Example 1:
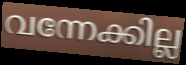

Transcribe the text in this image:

വന്നേക്കില്ല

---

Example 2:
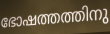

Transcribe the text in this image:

ഭോഷത്തത്തിനു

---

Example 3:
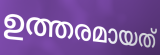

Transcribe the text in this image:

ഉത്തരമായത്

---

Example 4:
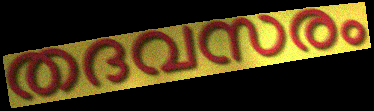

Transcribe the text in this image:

തദവസരം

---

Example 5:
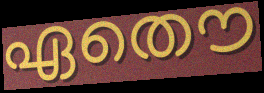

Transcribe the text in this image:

ഏതൌ